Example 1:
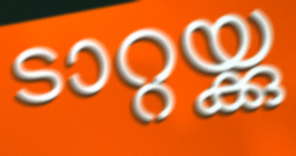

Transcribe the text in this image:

ടാറ്റയ്ക്കു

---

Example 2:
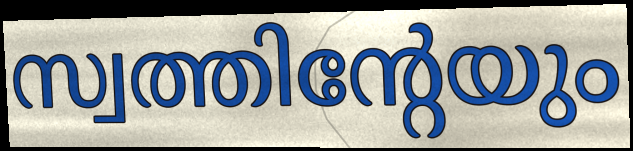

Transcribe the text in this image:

സ്വത്തിന്റേയും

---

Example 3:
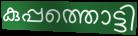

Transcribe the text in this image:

കുപ്പത്തൊട്ടി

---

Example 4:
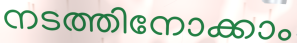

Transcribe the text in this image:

നടത്തിനോക്കാം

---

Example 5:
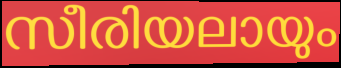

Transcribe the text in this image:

സീരിയലായും